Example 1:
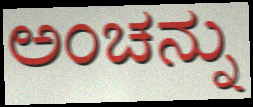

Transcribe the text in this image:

ಅಂಚನ್ನು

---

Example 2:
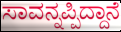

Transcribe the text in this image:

ಸಾವನ್ನಪ್ಪಿದ್ದಾನೆ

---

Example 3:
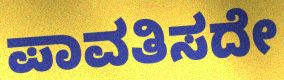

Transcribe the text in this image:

ಪಾವತಿಸದೇ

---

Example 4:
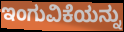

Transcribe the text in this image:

ಇಂಗುವಿಕೆಯನ್ನು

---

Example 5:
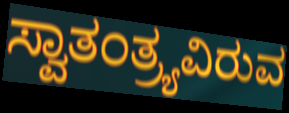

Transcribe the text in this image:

ಸ್ವಾತಂತ್ರ್ಯವಿರುವ